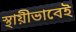
স্থায়ীভাবেই